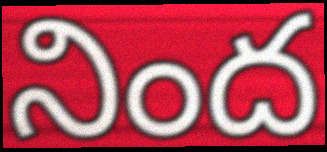
నింద